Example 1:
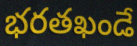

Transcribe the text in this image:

భరతఖండే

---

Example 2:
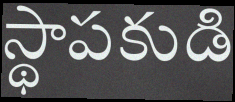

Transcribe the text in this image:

స్థాపకుడి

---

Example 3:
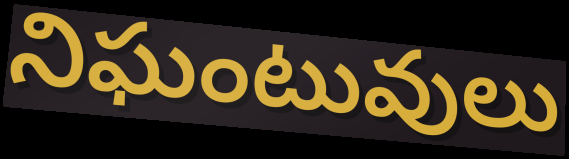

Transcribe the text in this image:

నిఘంటువులు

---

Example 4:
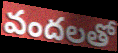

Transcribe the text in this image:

వందలతో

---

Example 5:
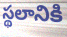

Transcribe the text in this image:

స్థలానికి